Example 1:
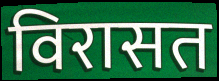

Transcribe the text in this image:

विरासत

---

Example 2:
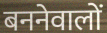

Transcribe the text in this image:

बननेवालों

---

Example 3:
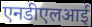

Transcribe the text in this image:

एनडीएलआई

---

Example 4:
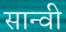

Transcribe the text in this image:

सान्वी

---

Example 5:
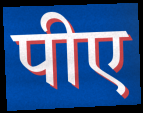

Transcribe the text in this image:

पीए